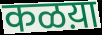
कळय़ा